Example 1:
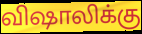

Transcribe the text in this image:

விஷாலிக்கு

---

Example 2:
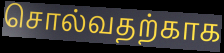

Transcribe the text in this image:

சொல்வதற்காக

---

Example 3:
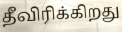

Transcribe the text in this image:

தீவிரிக்கிறது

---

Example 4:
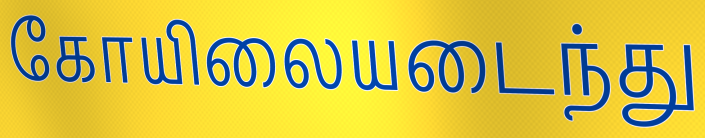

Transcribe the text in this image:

கோயிலையடைந்து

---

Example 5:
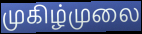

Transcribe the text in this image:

முகிழ்முலை